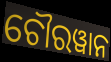
ଚୌରୱାନ